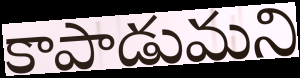
కాపాడుమని